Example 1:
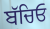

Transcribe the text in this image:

ਬੱਚਿਓ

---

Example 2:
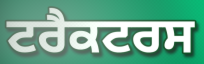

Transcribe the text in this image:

ਟਰੈਕਟਰਸ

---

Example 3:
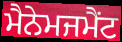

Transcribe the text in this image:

ਮੈਨੇਮਜਮੈਂਟ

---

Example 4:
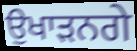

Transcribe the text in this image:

ਉਖਾੜਨਗੇ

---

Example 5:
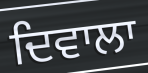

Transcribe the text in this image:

ਦਿਵਾਲਾ